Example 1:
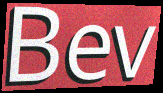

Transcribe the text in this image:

Bev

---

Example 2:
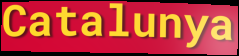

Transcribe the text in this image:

Catalunya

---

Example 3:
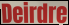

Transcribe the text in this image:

Deirdre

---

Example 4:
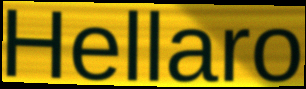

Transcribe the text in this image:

Hellaro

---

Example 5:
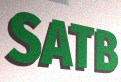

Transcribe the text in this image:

SATB